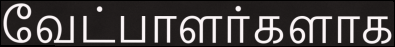
வேட்பாளர்களாக